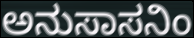
ಅನುಸಾಸನಿಂ